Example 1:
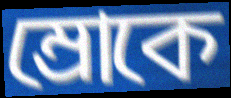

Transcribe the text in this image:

ম্রোকে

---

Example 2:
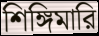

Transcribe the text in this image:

শিঙ্গিমারি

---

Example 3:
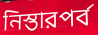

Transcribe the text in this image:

নিস্তারপর্ব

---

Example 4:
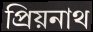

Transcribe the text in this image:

প্রিয়নাথ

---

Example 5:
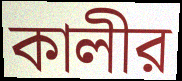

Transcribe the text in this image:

কালীর